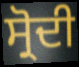
ਸ੍ਰੋਦੀ